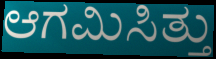
ಆಗಮಿಸಿತ್ತು